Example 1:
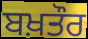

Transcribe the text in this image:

ਬਖ਼ਤੌਰ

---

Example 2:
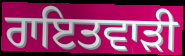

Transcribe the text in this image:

ਰਾਇਤਵਾੜੀ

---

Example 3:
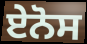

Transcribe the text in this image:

ਏਨੋਸ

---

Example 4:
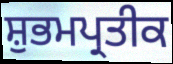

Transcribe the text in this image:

ਸ਼ੁਭਮਪ੍ਰਤੀਕ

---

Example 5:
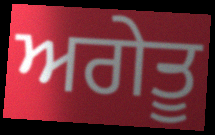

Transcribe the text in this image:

ਅਗੇਤੂ